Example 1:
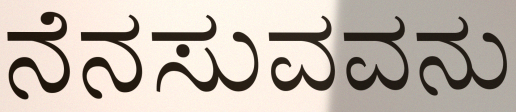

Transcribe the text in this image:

ನೆನಸುವವನು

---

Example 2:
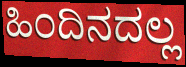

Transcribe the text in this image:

ಹಿಂದಿನದಲ್ಲ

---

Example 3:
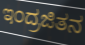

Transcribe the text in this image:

ಇಂದ್ರಜಿತನ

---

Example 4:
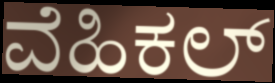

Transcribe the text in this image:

ವೆಹಿಕಲ್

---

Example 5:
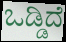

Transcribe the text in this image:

ಒಡ್ಡಿದೆ